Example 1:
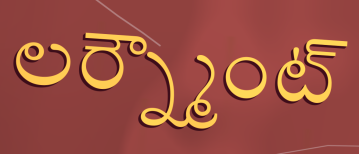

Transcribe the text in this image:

లర్న్మౌంట్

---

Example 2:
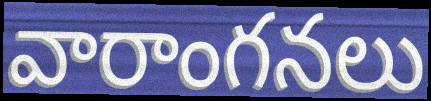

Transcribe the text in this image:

వారాంగనలు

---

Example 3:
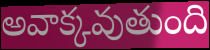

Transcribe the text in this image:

అవాక్కవుతుంది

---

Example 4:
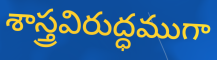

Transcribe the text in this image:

శాస్త్రవిరుద్ధముగా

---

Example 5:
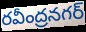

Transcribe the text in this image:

రవీంద్రనగర్